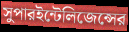
সুপারইন্টেলিজেন্সের